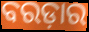
ବରଡ଼ାର